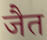
जैत